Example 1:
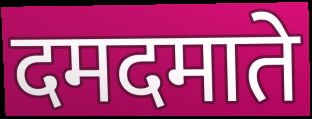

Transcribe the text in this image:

दमदमाते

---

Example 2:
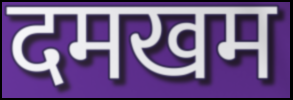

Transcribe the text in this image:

दमखम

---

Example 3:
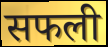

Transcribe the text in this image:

सफली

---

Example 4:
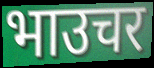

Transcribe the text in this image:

भाउचर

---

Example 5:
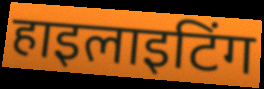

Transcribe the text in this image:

हाइलाइटिंग